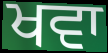
ਖਵਾ